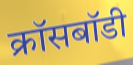
क्रॉसबॉडी